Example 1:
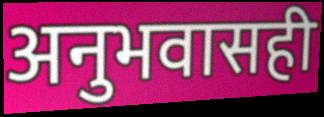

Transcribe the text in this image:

अनुभवासही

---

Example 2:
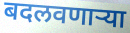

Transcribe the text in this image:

बदलवणार्‍या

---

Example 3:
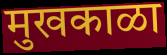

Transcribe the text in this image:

मुखकाळा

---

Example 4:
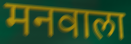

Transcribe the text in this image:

मनवाला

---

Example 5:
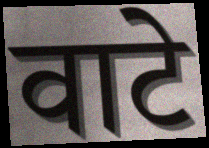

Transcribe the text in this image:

वाटे